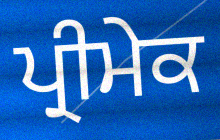
ਪ੍ਰੀਮੇਕ